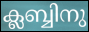
ക്ലബ്ബിനു